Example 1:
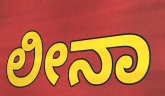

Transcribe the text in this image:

ಲೀನಾ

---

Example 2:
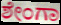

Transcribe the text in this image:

ಶೇಂಗಾ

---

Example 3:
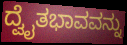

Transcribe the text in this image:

ದ್ವೈತಭಾವವನ್ನು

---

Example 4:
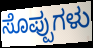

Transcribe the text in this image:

ಸೊಪ್ಪುಗಳು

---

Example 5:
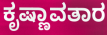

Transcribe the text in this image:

ಕೃಷ್ಣಾವತಾರ